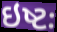
ઇષ્ટઃ